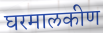
घरमालकीण